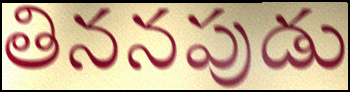
తిననపుడు